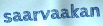
saarvaakan